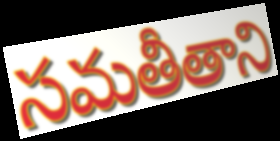
సమతీతాని